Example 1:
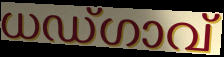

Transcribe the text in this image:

ധഡ്ഗാവ്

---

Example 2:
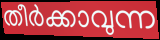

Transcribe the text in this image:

തീർക്കാവുന്ന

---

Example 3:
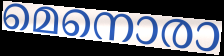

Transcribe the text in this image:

മെനൊരാ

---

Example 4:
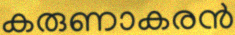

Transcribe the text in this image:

കരുണാകരൻ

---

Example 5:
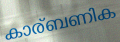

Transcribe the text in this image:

കാര്ബണിക